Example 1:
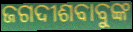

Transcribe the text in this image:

ଜଗଦୀଶବାବୁଙ୍କ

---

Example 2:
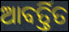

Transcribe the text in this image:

ଆବର୍ତ୍ତିତ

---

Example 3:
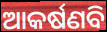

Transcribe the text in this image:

ଆକର୍ଷଣବି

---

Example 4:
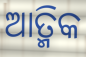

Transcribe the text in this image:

ଆତ୍ମିକ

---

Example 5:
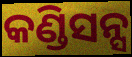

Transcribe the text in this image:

କଣ୍ଡିସନ୍ସ